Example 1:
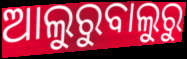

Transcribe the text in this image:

ଆଲୁରୁବାଲୁରୁ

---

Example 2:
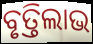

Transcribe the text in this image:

ବୃତ୍ତିଲାଭ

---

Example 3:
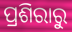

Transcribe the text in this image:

ପ୍ରଶିରାରୁ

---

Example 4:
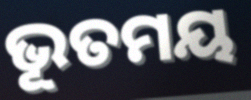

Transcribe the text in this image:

ଭୂତମୟ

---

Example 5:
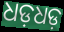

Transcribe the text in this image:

ଧଡ଼ଧଡ଼